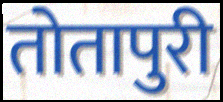
तोतापुरी